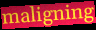
maligning